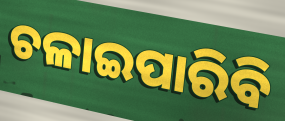
ଚଳାଇପାରିବି